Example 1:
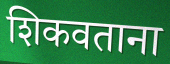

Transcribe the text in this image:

शिकवताना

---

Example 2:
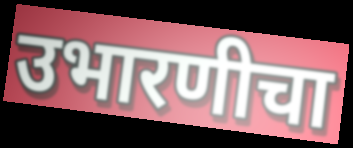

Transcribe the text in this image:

उभारणीचा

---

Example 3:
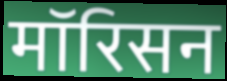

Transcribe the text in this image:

मॉरिसन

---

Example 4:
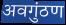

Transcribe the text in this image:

अवगुंठण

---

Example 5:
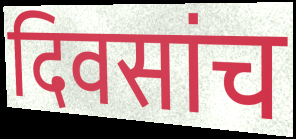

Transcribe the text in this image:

दिवसांच